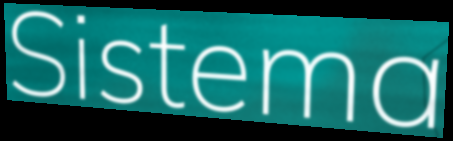
Sistema